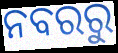
ନବରରୁ